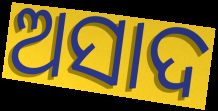
ଅସାଦ